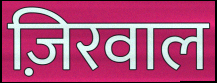
ज़िरवाल